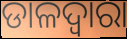
ଡାଳଦ୍ୱାରା